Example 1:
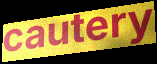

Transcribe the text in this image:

cautery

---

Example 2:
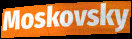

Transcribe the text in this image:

Moskovsky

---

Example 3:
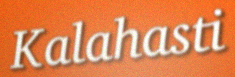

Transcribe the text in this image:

Kalahasti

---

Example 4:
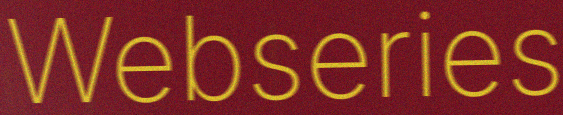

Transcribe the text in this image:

Webseries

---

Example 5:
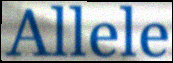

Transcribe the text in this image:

Allele